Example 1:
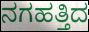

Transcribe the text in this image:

ನಗಹತ್ತಿದ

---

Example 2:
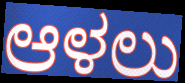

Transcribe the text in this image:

ಆಳಲು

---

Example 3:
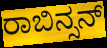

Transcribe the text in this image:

ರಾಬಿನ್ಸನ್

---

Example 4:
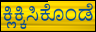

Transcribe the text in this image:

ಕ್ಲಿಕ್ಕಿಸಿಕೊಂಡೆ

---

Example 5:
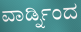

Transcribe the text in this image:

ವಾರ್ಡ್ನಿಂದ